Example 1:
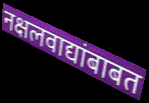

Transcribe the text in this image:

नक्षलवाद्यांबाबत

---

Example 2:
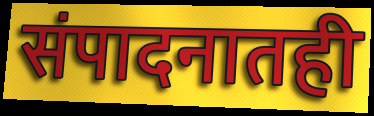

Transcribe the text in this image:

संपादनातही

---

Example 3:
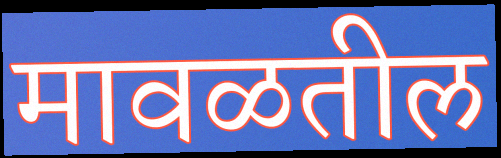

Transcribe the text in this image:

मावळतील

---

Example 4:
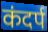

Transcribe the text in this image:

कंदर्प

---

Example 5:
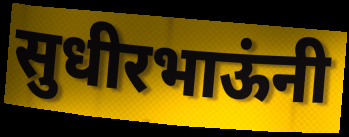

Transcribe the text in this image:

सुधीरभाऊंनी